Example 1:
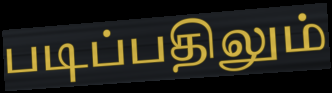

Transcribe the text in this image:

படிப்பதிலும்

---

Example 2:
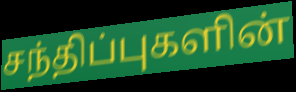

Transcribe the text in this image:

சந்திப்புகளின்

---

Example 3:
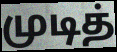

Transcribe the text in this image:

முடித்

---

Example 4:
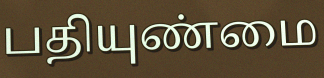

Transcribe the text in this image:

பதியுண்மை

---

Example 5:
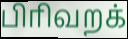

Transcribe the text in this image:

பிரிவறக்